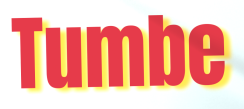
Tumbe